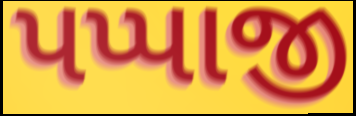
પપ્પાજી